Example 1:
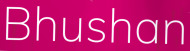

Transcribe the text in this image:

Bhushan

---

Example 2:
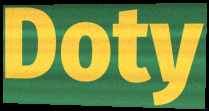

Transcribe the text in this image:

Doty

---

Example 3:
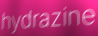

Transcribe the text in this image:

hydrazine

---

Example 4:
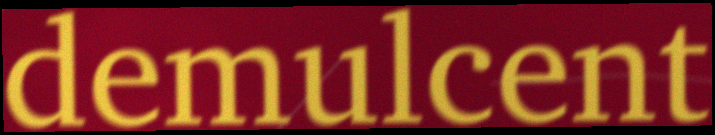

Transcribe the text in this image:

demulcent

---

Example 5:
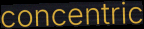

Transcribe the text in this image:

concentric